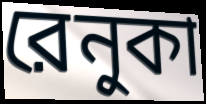
রেনুকা